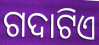
ଗଦାଟିଏ